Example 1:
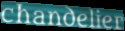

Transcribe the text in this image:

chandelier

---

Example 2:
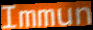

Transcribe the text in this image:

Immun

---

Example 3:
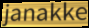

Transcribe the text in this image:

janakke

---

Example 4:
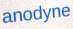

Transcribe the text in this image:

anodyne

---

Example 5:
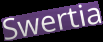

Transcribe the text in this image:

Swertia